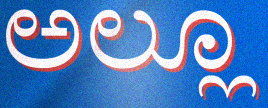
ಅಲ್ಲೂ